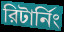
রিটার্নিং